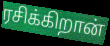
ரசிக்கிறான்